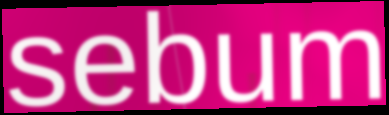
sebum